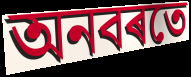
অনবৰতে